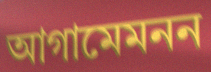
আগামেমনন